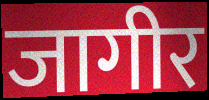
जागीर